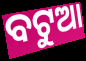
ବଟୁଆ